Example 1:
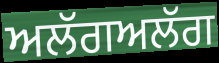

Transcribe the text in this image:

ਅਲੱਗਅਲੱਗ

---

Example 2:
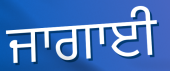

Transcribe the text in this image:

ਜਾਗਾਈ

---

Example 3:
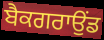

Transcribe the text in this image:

ਬੈਕਗਰਾਉਂਡ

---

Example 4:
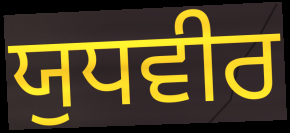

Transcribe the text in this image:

ਯੁਧਵੀਰ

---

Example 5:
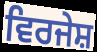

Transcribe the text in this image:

ਵਿਰਜੇਸ਼